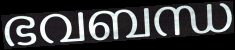
ഭവബന്ധ